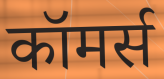
कॉमर्स